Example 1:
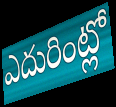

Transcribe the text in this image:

ఎదురింట్లో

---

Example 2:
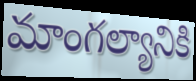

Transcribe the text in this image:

మాంగల్యానికి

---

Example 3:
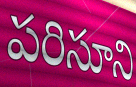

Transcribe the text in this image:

పరిసూని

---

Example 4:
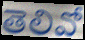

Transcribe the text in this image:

తెలివో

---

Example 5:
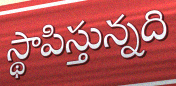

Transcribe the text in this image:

స్థాపిస్తున్నది